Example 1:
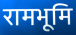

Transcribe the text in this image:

रामभूमि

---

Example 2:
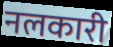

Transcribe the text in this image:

नलकारी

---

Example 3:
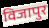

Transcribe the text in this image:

विजापुर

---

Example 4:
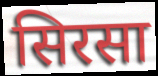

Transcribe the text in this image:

सिरसा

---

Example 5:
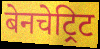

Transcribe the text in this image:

बेनचेट्रिट